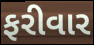
ફરીવાર